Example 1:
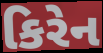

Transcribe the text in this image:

કિરેન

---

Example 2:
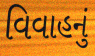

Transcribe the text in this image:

વિવાહનું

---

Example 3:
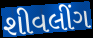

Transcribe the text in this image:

શીવલીંગ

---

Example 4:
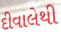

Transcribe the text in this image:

દીવાલેથી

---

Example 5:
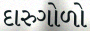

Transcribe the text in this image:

દારુગોળો